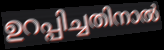
ഉറപ്പിച്ചതിനാൽ